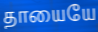
தாயையே